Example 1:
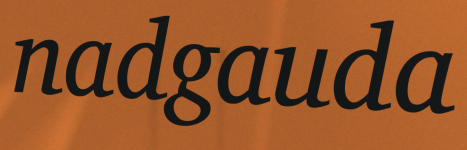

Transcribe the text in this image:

nadgauda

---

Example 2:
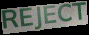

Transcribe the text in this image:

REJECT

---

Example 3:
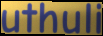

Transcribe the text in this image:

uthuli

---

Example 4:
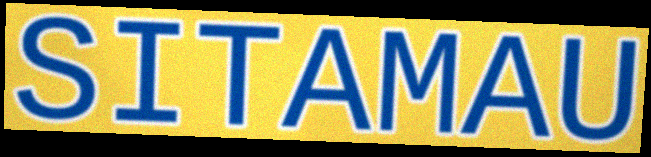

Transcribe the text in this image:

SITAMAU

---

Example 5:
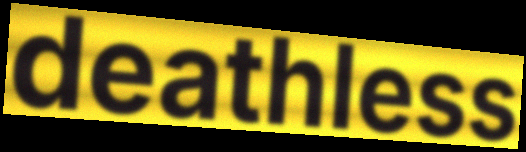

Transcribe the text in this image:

deathless